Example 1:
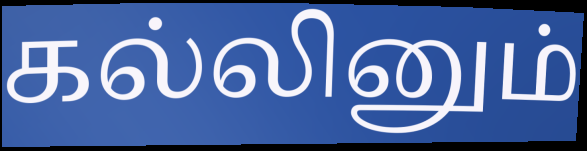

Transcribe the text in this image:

கல்லினும்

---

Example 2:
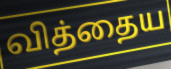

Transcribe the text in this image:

வித்தைய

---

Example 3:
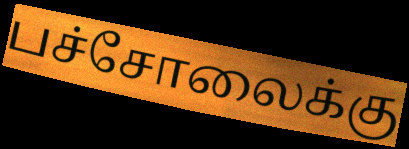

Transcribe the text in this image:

பச்சோலைக்கு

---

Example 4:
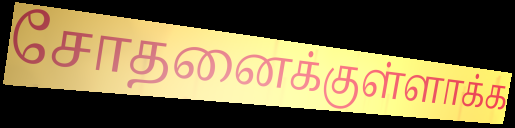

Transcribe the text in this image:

சோதனைக்குள்ளாக்க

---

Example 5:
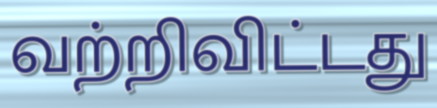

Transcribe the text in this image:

வற்றிவிட்டது